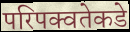
परिपक्वतेकडे